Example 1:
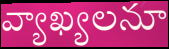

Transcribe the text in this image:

వ్యాఖ్యలనూ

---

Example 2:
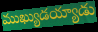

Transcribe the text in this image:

ముఖ్యుడయ్యాడు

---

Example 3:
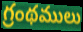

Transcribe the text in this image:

గ్రంథములు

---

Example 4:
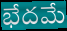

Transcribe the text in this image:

భేదమే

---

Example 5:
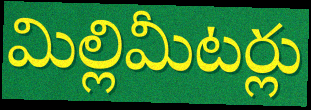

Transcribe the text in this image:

మిల్లిమీటర్లు